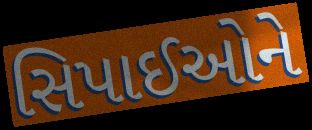
સિપાઈઓને